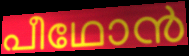
പീഥോൻ